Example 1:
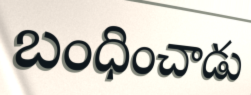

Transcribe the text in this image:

బంధించాడు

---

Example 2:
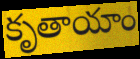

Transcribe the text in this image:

కృతాయాం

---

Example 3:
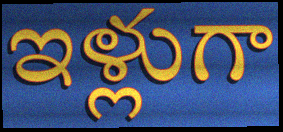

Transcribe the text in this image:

ఇళ్లుగా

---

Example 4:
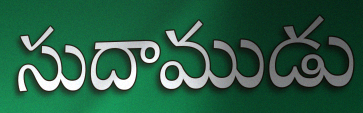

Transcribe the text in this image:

సుదాముడు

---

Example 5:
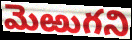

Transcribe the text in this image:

మెఱుగని